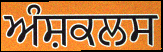
ਅੰਸ਼ਕਲਸ